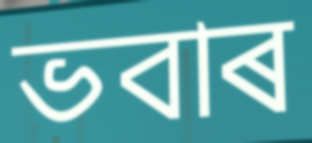
ভবাৰ